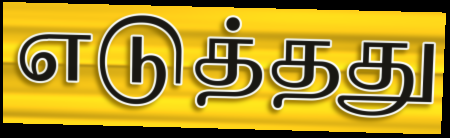
எடுத்தது